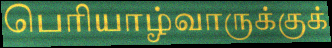
பெரியாழ்வாருக்குக்